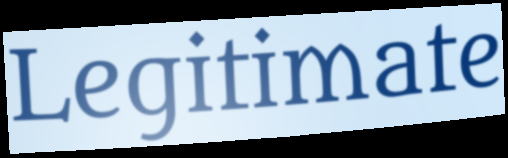
Legitimate